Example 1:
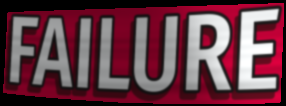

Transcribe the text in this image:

FAILURE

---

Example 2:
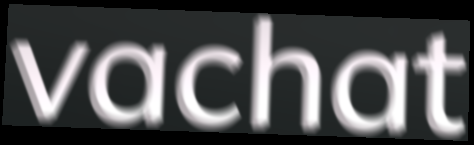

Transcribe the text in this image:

vachat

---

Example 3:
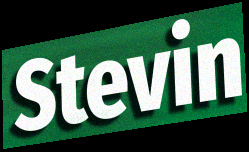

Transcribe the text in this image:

Stevin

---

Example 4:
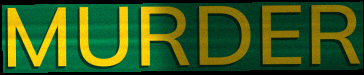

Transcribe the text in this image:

MURDER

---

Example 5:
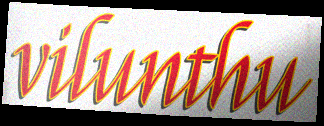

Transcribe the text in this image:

vilunthu